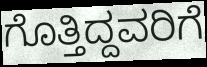
ಗೊತ್ತಿದ್ದವರಿಗೆ